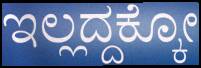
ಇಲ್ಲದ್ದಕ್ಕೋ